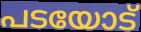
പടയോട്